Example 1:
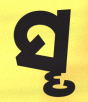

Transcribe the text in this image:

ସୄ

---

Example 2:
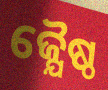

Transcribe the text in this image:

ଜ୍ଯୈଷ୍ଠ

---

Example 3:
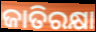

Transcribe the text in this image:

ଜାତିରକ୍ଷା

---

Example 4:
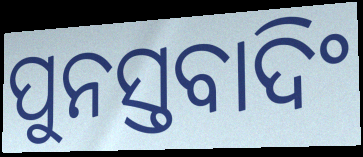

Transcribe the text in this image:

ପୁନସ୍ତବାଦିଂ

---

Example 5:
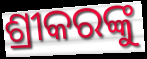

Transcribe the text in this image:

ଶ୍ରୀକରଙ୍କୁ